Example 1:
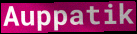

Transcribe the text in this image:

Auppatik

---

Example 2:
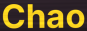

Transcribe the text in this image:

Chao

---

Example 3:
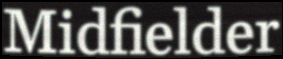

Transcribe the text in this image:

Midfielder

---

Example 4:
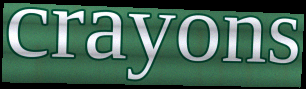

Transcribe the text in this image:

crayons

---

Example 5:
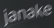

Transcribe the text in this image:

janake